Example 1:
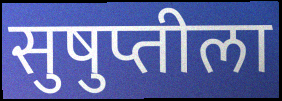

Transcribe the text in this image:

सुषुप्तीला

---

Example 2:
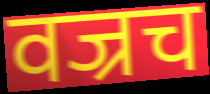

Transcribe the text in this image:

वज्रच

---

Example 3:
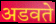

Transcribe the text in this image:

अडवते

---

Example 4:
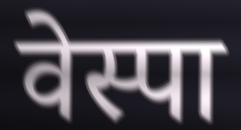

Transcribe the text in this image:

वेस्पा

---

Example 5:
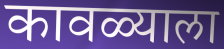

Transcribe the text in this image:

कावळ्याला